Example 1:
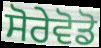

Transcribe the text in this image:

ਸੋਰੇਵੋਡੋ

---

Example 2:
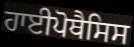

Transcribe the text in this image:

ਹਾਈਪੋਥੈਸਿਸ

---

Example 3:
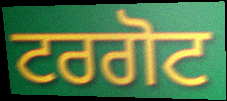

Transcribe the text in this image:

ਟਰਗੋਟ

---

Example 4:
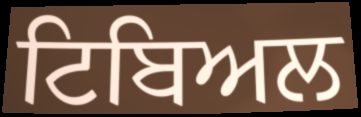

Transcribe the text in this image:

ਟਿਬਿਅਲ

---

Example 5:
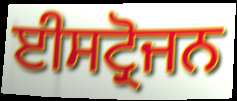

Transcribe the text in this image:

ਈਸਟ੍ਰੋਜਨ